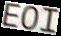
EOI